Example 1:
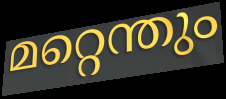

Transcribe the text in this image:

മറ്റെന്തും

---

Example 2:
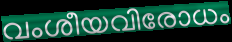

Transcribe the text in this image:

വംശീയവിരോധം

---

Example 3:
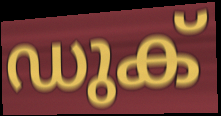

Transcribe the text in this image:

ഡുക്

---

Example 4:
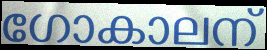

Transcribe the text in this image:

ഗോകാലന്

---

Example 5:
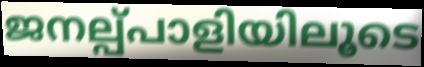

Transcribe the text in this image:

ജനല്പ്പാളിയിലൂടെ